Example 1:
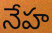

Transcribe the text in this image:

నేహ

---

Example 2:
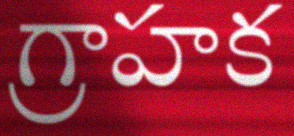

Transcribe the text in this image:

గ్రాహక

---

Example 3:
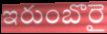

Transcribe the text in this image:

ఇరుంబొరై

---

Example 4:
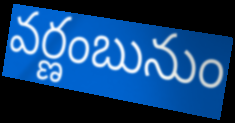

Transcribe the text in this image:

వర్ణంబునుం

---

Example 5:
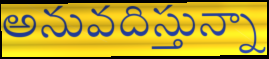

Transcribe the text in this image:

అనువదిస్తున్నా